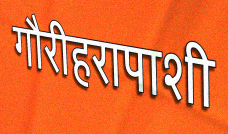
गौरीहरापाशी